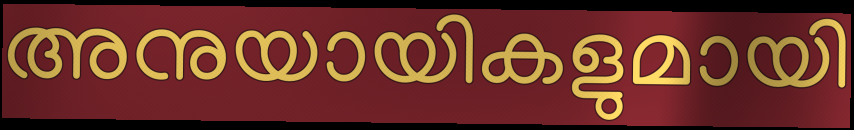
അനുയായികളുമായി